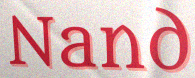
Nand